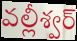
వల్లీశ్వర్